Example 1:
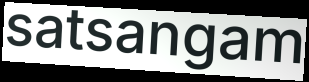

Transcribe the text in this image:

satsangam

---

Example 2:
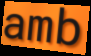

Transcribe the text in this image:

amb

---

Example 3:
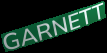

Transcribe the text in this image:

GARNETT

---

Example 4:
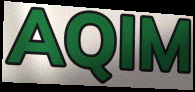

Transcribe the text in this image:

AQIM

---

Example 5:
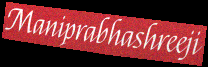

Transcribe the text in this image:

Maniprabhashreeji